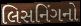
લિસનિંગનો